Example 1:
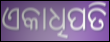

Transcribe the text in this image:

ଏକାଧିପତି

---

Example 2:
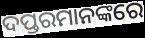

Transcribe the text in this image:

ଦପ୍ତରମାନଙ୍କରେ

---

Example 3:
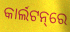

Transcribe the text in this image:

କାର୍ଲଟନ୍‌ରେ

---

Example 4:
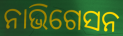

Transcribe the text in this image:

ନାଭିଗେସନ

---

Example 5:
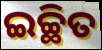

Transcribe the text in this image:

ଇଚ୍ଛିତ